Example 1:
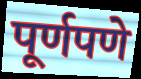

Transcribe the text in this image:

पूर्णपणे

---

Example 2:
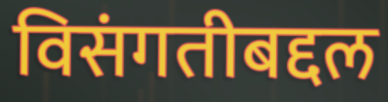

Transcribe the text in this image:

विसंगतीबद्दल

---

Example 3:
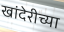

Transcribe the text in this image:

खांदेरीच्या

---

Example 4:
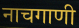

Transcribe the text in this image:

नाचगाणी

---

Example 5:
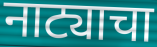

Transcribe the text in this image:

नाट्याचा